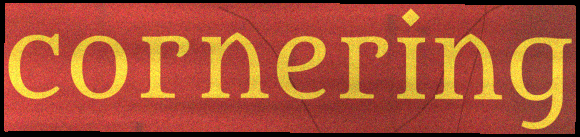
cornering